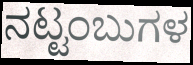
ನಟ್ಟಂಬುಗಳ